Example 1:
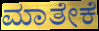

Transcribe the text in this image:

ಮಾತೇಕೆ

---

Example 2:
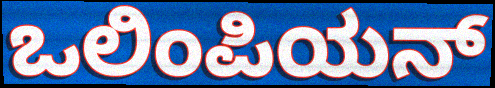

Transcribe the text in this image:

ಒಲಿಂಪಿಯನ್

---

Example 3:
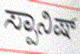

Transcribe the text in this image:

ಸ್ಪಾನಿಷ್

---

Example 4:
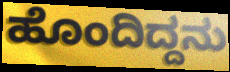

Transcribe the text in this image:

ಹೊಂದಿದ್ದನು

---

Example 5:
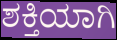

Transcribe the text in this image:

ಶಕ್ತಿಯಾಗಿ